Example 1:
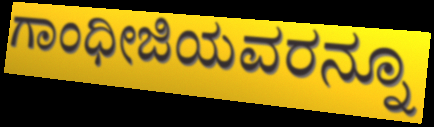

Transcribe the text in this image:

ಗಾಂಧೀಜಿಯವರನ್ನೂ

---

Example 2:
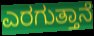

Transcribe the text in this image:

ಎರಗುತ್ತಾನೆ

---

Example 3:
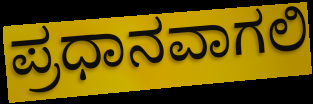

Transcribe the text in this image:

ಪ್ರಧಾನವಾಗಲಿ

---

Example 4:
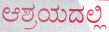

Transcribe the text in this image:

ಆಶ್ರಯದಲ್ಲಿ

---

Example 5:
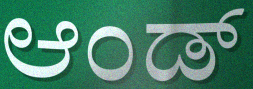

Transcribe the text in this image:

ಆಂಡ್